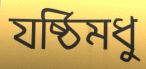
যষ্ঠিমধু